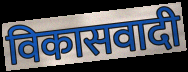
विकासवादी